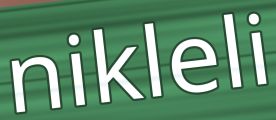
nikleli